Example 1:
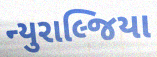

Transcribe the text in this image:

ન્યુરાલ્જિયા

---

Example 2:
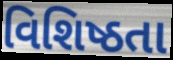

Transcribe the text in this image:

વિશિષ્ઠતા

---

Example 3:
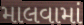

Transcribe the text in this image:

માલવામાં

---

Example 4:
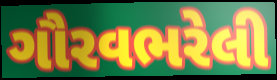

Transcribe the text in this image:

ગૌરવભરેલી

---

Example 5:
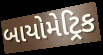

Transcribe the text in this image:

બાયોમેટ્રિક